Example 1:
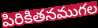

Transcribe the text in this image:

పిరికితనముగల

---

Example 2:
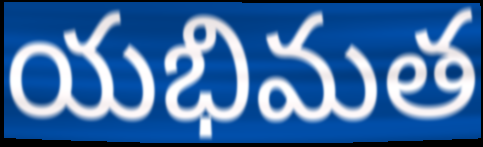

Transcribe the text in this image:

యభిమత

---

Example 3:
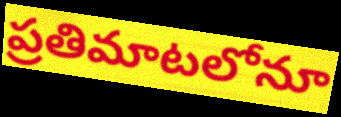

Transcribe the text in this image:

ప్రతిమాటలోనూ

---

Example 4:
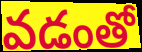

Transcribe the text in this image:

వడంతో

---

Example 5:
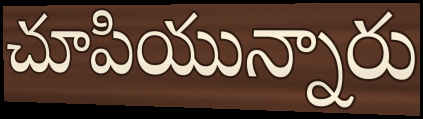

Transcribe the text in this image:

చూపియున్నారు